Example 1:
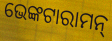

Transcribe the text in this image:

ଭେଙ୍କଟାରାମନ୍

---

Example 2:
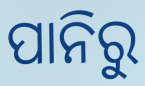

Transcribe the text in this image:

ପାନିରୁ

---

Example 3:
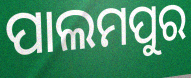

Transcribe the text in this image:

ପାଲମପୁର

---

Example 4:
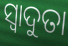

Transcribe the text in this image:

ସ୍ୱାଦୁତା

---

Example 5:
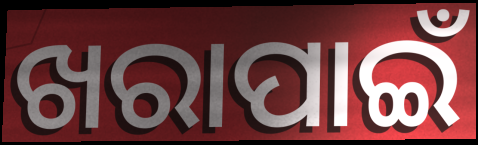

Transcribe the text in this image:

ଖରାପାଇଁ